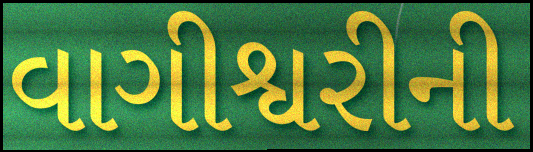
વાગીશ્વરીની